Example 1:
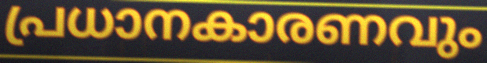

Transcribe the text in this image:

പ്രധാനകാരണവും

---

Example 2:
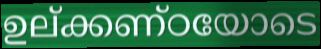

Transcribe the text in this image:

ഉല്ക്കണ്ഠയോടെ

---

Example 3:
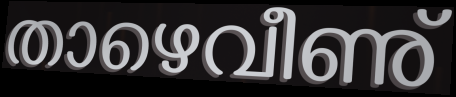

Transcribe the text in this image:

താഴെവീണു്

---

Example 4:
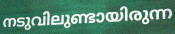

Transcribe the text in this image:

നടുവിലുണ്ടായിരുന്ന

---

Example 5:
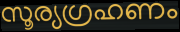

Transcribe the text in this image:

സൂര്യഗ്രഹണം